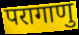
परागाणु